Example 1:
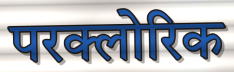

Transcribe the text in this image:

परक्लोरिक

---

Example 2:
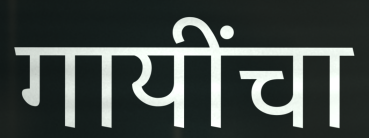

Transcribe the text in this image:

गायींचा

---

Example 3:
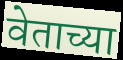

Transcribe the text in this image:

वेताच्या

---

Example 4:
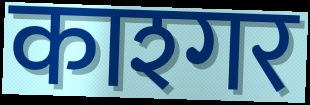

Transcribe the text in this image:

काश्गर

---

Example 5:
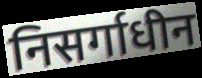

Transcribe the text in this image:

निसर्गाधीन